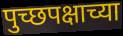
पुच्छपक्षाच्या